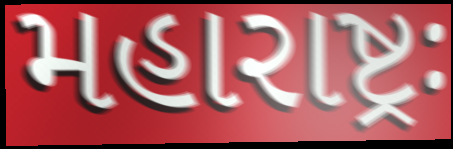
મહારાષ્ટ્રઃ